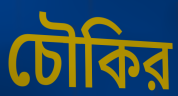
চৌকির